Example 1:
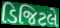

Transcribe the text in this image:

ડિજિટલે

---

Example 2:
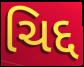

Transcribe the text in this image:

ચિદ્દ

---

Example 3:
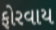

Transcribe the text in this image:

ફોરવાય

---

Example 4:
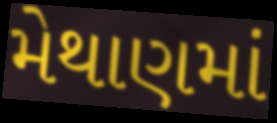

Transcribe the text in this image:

મેથાણમાં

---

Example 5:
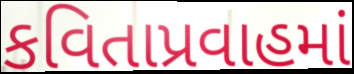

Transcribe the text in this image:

કવિતાપ્રવાહમાં